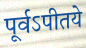
पूर्वऽपीतये